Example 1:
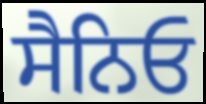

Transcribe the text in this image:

ਸੈਨਿਓ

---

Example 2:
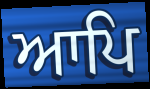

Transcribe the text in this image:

ਆਪਿ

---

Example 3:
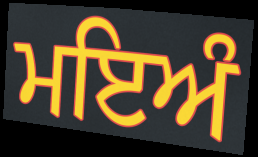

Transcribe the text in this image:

ਮਇਅੰ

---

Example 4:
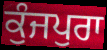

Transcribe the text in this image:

ਕੁੰਜਪੁਰਾ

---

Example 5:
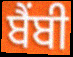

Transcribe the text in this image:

ਬੈਂਬੀ